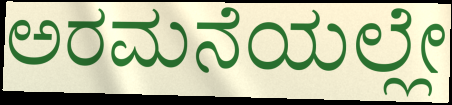
ಅರಮನೆಯಲ್ಲೇ